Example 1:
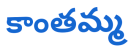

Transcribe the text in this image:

కాంతమ్మ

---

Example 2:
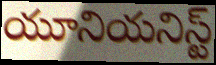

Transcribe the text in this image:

యూనియనిస్ట్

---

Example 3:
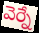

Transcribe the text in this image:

వెర్నే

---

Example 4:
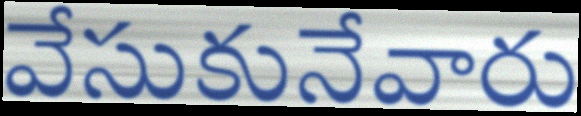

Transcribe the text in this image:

వేసుకునేవారు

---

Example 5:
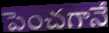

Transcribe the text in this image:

పెంచగానే